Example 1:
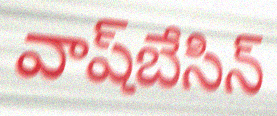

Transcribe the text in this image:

వాష్‌బేసిన్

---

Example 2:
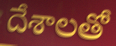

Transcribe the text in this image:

దేశాలతో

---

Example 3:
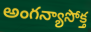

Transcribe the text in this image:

అంగన్యాసోక్త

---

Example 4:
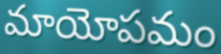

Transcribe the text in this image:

మాయోపమం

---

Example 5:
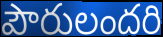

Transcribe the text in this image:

పౌరులందరి